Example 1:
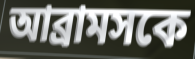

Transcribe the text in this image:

আব্রামসকে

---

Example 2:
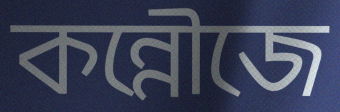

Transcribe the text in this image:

কন্নৌজে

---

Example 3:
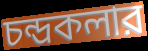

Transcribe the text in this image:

চন্দ্রকলার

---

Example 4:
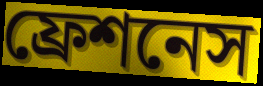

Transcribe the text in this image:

ফ্রেশনেস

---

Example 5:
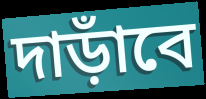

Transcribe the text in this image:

দাড়াঁবে